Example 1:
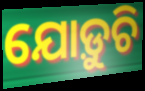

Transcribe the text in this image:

ଯୋଡ଼ୁଚି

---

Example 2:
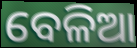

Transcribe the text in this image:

ବେଳିଆ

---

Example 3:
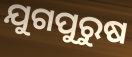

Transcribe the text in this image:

ଯୁଗପୁରୁଷ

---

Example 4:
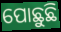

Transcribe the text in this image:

ପୋଛୁଛି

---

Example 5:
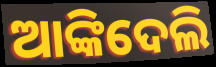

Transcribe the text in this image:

ଆଙ୍କିଦେଲି